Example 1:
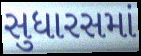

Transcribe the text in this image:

સુધારસમાં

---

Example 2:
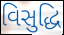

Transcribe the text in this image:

વિસુદ્ધિ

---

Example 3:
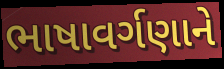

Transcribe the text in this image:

ભાષાવર્ગણાને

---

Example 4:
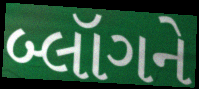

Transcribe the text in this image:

બ્લૉગને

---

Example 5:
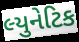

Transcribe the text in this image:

લ્યુનેટિક